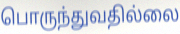
பொருந்துவதில்லை